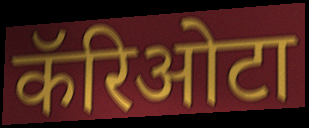
कॅरिओटा